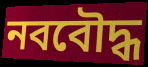
নববৌদ্ধ